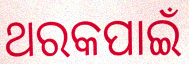
ଥରକପାଇଁ